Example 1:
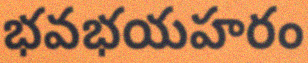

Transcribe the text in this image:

భవభయహరం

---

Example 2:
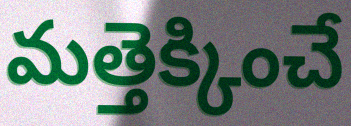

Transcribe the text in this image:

మత్తెక్కించే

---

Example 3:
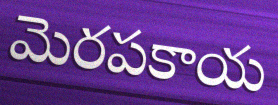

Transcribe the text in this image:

మెరపకాయ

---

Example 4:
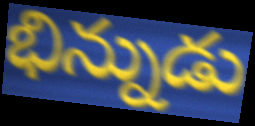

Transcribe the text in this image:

భిన్నుడు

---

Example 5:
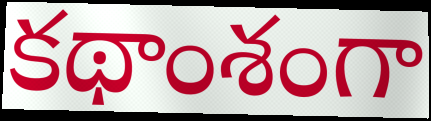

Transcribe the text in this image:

కథాంశంగా